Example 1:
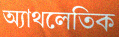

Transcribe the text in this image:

অ্যাথলেতিক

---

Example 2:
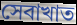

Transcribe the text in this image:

সেবাখাত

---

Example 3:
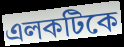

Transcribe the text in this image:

এলকটিকে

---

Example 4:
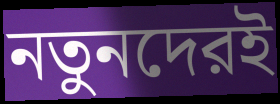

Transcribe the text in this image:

নতুনদেরই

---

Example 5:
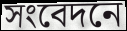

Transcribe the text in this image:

সংবেদনে